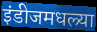
इंडीजमधल्या